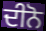
ਦੀਨੋ